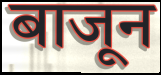
बाजून